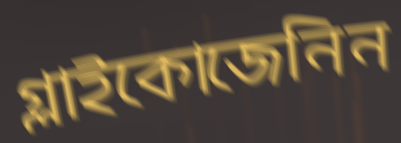
গ্লাইকোজেনিন